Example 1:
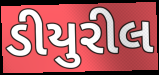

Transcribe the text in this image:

ડીયુરીલ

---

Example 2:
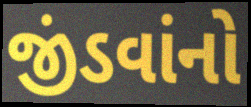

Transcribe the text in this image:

જીંડવાંનો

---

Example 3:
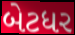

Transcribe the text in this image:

બેટધર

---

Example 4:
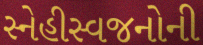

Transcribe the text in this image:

સ્નેહીસ્વજનોની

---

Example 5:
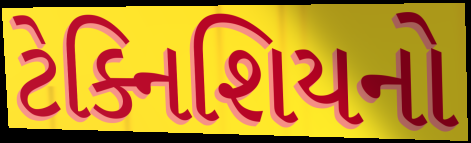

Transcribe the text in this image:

ટેક્નિશિયનો